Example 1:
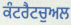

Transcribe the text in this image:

ਕੰਟਰੈਟਚੁਅਲ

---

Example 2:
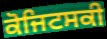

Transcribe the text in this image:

ਕੋਜਿਟਸਕੀ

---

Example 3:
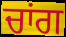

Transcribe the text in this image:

ਚਾਂਗ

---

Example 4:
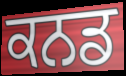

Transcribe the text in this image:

ਕਨਡ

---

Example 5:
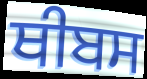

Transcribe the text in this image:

ਥੀਬਸ